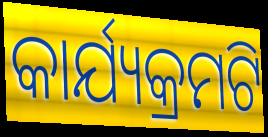
କାର୍ଯ୍ୟକ୍ରମଟି